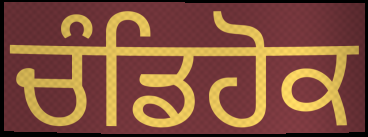
ਚੰਡਿਹੋਕ